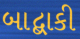
બાદ્બાકી